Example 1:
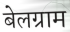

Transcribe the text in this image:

बेलग्राम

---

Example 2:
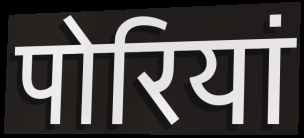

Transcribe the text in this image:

पोरियां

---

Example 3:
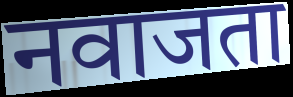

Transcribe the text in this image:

नवाजता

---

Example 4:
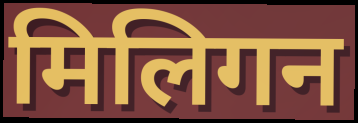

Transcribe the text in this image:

मिलिगन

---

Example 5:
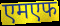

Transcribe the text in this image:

एमएफ